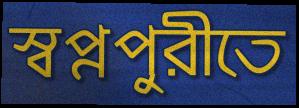
স্বপ্নপুরীতে